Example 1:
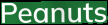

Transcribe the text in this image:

Peanuts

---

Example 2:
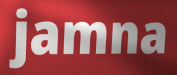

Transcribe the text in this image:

jamna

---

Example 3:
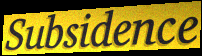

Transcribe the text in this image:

Subsidence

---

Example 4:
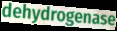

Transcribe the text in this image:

dehydrogenase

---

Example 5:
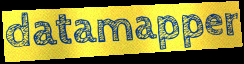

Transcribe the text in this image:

datamapper